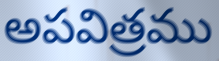
అపవిత్రము